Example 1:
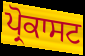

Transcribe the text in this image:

ਪ੍ਰੋਕਾਸਟ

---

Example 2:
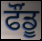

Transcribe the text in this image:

ਫੌਂਡੂ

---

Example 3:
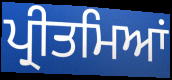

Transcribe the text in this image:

ਪ੍ਰੀਤਮਿਆਂ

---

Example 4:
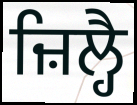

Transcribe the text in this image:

ਜ਼ਿਲ੍ਹੈ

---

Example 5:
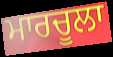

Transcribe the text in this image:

ਮਾਰਚੂਲਾ